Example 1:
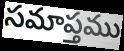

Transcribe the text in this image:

సమాప్తము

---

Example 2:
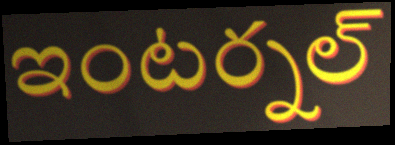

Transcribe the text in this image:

ఇంటర్నల్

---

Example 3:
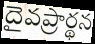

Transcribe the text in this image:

దైవప్రార్థన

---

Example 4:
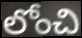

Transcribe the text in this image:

లోంచి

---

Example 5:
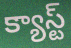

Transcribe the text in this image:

క్యాస్ట్